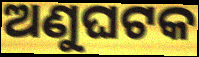
ଅଣୁଘଟକ